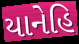
યાનેહિ